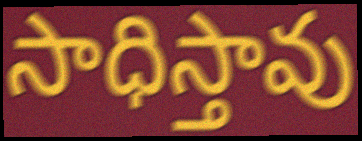
సాధిస్తావు